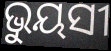
ଭୁୟସୀ